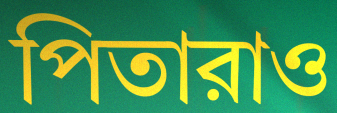
পিতারাও